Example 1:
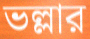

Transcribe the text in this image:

ভল্লার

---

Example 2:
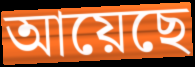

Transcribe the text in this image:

আয়েছে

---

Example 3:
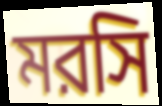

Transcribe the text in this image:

মরসি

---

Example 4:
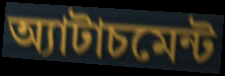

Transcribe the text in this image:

অ্যাটাচমেন্ট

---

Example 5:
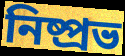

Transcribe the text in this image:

নিষ্প্রভ